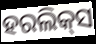
ହରଲିକ୍‍ସ